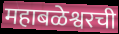
महाबळेश्वरची